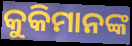
କୁକିମାନଙ୍କ